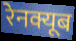
रेनक्यूब